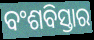
ବଂଶବିସ୍ତାର